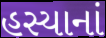
હસ્યાનાં